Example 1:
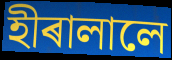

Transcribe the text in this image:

হীৰালালে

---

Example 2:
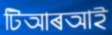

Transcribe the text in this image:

টিআৰআই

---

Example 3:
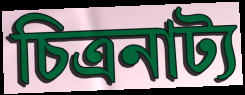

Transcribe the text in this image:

চিত্ৰনাট্য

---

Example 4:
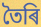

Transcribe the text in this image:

তৈৰি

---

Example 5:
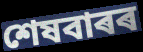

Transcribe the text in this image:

শেষবাৰৰ